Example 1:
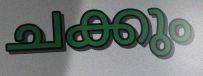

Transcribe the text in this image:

ചക്കും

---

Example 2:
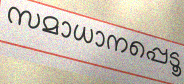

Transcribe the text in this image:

സമാധാനപ്പെടൂ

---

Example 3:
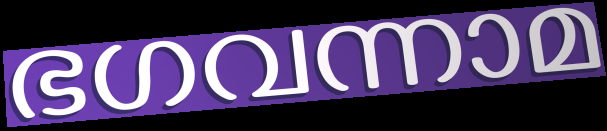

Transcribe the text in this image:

ഭഗവന്നാമ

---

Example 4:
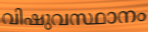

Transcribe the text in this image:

വിഷുവസ്ഥാനം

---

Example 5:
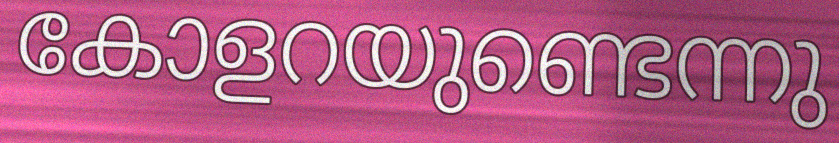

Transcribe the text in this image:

കോളറയുണ്ടെന്നു